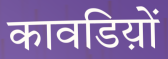
कावडिय़ों